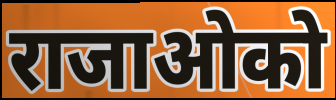
राजाओको